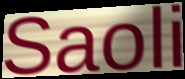
Saoli